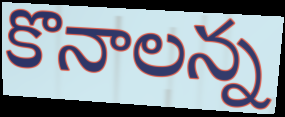
కొనాలన్న